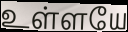
உள்ளயே